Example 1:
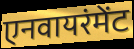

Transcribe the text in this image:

एनवायरंमेंट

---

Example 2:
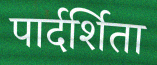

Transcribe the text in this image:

पार्दर्शिता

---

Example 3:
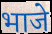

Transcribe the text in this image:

भाजे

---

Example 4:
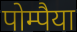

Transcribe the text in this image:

पोम्पैया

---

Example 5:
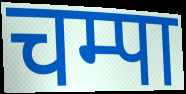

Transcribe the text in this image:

चम्पा